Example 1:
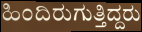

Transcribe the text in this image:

ಹಿಂದಿರುಗುತ್ತಿದ್ದರು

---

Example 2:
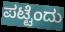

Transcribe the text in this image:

ಪಟ್ಟೆಂದು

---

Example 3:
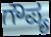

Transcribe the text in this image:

ಗೌಪ್ಯ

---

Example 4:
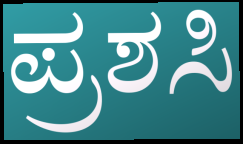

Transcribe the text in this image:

ಪ್ರಶಸಿ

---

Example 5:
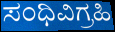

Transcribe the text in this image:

ಸಂಧಿವಿಗ್ರಹಿ